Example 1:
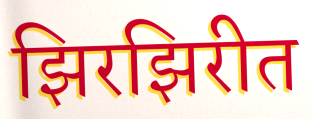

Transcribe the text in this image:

झिरझिरीत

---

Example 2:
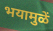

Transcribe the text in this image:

भयामुळें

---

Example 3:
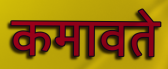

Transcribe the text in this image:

कमावते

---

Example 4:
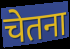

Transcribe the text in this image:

चेतना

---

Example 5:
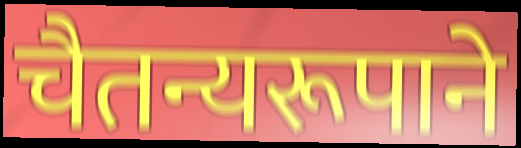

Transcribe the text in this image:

चैतन्यरूपाने